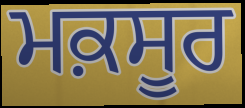
ਮਕ਼ਸੂਰ